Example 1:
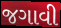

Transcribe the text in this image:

જગાવી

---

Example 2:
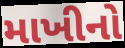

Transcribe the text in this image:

માખીનો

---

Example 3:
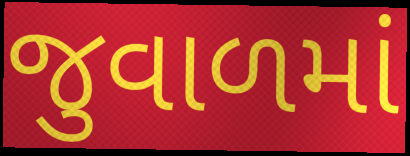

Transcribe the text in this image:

જુવાળમાં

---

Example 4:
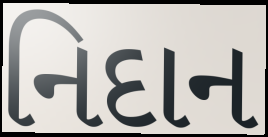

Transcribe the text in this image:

નિદાન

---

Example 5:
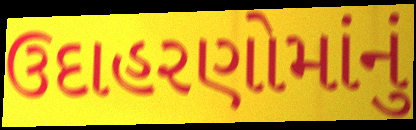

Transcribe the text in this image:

ઉદાહરણોમાંનું